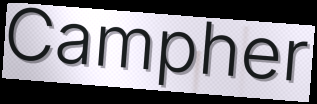
Campher